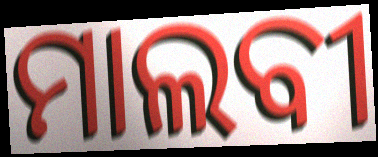
ମାଲବୀ